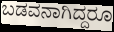
ಬಡವನಾಗಿದ್ದರೂ